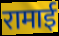
रामाई